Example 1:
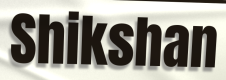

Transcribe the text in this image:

Shikshan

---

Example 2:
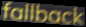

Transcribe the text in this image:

fallback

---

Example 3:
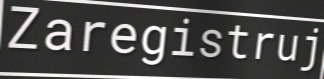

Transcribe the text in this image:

Zaregistruj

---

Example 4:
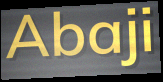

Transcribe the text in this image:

Abaji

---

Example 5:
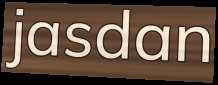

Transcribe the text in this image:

jasdan